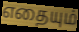
எதையும்